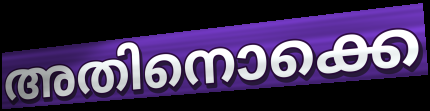
അതിനൊക്കെ